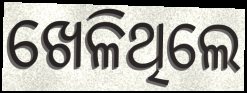
ଖେଳିଥିଲେ